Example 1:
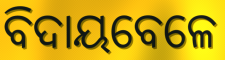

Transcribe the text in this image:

ବିଦାୟବେଳେ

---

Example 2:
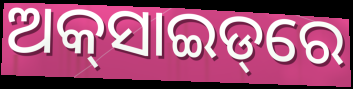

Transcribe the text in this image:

ଅକ୍‌ସାଇଡ୍‌ରେ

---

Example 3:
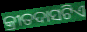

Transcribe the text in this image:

କ୍ରୀତଦାସଟିଏ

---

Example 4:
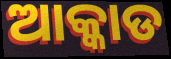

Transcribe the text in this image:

ଆକ୍କାଡ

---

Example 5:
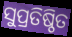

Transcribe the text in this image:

ସୁପ୍ରତିଷ୍ଠିତ